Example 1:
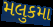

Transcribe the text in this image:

મલુકમા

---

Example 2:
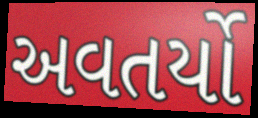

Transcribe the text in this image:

અવતર્યો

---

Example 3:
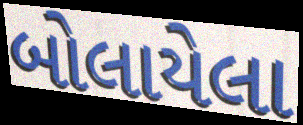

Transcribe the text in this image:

બોલાયેલા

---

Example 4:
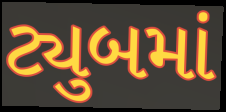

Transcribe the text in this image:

ટ્યુબમાં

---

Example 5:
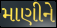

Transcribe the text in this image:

માણીને